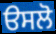
ੳਸਲੋ